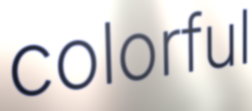
colorful